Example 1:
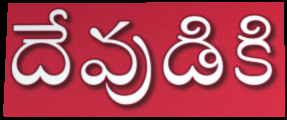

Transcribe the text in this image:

దేవుడికి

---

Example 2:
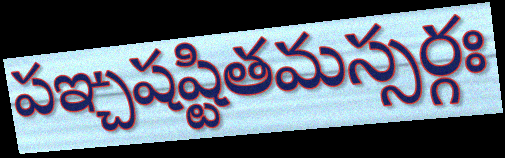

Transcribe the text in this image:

పఞ్చషష్టితమస్సర్గః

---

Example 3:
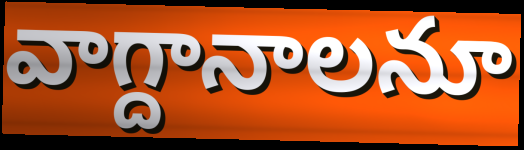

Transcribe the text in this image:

వాగ్దానాలనూ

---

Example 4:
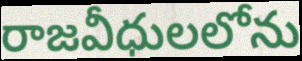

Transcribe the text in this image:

రాజవీధులలోను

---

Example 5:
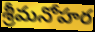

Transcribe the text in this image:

శ్రీమనోహర